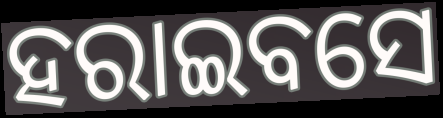
ହରାଇବସେ